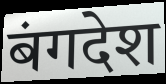
बंगदेश